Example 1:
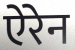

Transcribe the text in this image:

ऐरेन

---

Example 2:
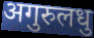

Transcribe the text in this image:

अगुरुलधु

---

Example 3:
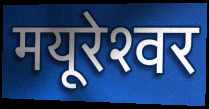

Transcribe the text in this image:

मयूरेश्वर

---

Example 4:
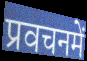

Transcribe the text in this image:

प्रवचनमें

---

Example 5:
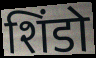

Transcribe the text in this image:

शिंडो